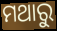
ମଥାରୁ